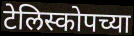
टेलिस्कोपच्या